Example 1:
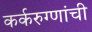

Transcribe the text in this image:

कर्करुग्णांची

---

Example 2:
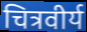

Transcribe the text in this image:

चित्रवीर्य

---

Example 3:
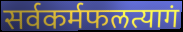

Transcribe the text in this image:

सर्वकर्मफलत्यागं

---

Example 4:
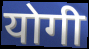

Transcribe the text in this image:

योगी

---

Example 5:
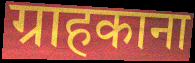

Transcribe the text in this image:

ग्राहकाना